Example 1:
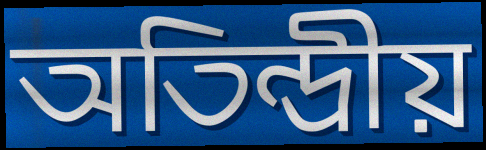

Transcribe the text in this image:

অতিন্দ্রীয়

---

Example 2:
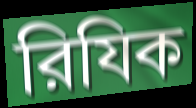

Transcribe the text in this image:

রিযিক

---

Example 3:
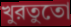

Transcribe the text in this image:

খুরতুতো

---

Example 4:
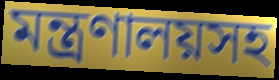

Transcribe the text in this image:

মন্ত্রণালয়সহ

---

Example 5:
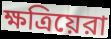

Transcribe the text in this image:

ক্ষত্রিয়েরা